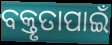
ବକ୍ତୃତାପାଇଁ